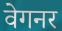
वेगनर